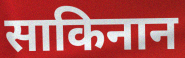
साकिनान